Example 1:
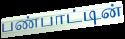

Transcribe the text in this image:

பண்பாட்டின்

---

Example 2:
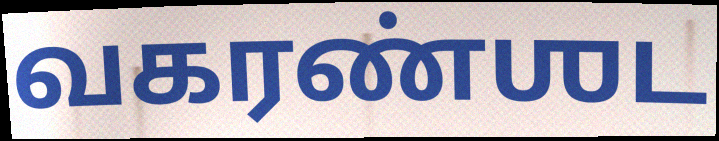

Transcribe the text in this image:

வகரண்ஶட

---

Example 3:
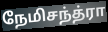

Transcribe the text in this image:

நேமிசந்த்ரா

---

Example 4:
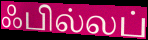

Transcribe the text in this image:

ஃபில்லப்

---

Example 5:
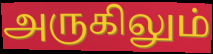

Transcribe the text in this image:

அருகிலும்